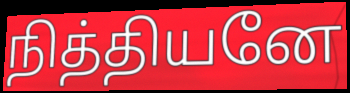
நித்தியனே